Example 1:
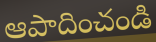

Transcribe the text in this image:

ఆపాదించండి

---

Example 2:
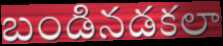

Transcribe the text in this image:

బండినడకలా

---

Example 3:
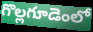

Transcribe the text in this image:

గొల్లగూడెంలో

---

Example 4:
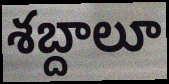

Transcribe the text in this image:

శబ్దాలూ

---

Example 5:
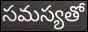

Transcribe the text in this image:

సమస్యతో